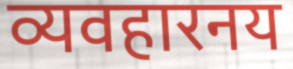
व्यवहारनय